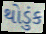
થોડુંક